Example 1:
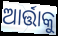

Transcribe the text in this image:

ଆର୍ତ୍ତାକୁ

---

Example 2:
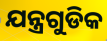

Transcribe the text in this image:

ଯନ୍ତ୍ରଗୁଡିକ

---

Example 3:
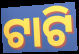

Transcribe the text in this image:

ଟାଟି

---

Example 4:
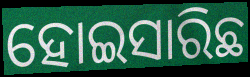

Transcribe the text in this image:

ହୋଇସାରିଛ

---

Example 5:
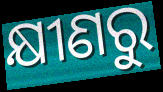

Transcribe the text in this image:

କ୍ଷୀଣରୁ